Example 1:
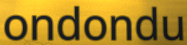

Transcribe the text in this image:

ondondu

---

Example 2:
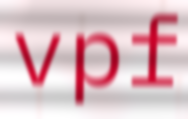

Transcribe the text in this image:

vpf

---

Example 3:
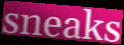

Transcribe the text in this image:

sneaks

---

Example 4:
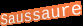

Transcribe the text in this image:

Saussaure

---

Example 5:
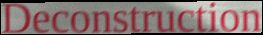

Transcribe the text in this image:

Deconstruction